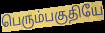
பெரும்பகுதியே